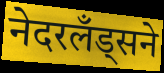
नेदरलँड्सने